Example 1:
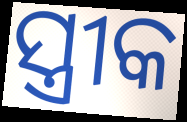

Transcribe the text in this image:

ସ୍ତ୍ରୀକ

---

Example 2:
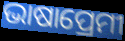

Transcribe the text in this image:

ଭାଷାପ୍ରେମୀ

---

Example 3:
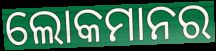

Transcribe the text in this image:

ଲୋକମାନର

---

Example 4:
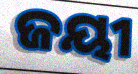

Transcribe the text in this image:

ଜୟୀ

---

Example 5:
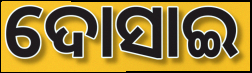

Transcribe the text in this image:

ଦୋସାଇ